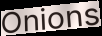
Onions